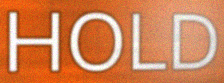
HOLD